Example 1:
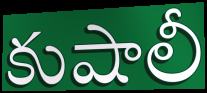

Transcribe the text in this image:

కుషాలీ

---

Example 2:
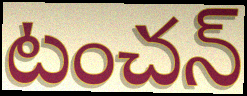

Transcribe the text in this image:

టంచన్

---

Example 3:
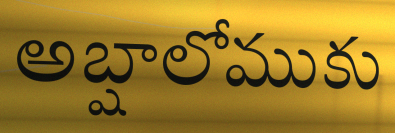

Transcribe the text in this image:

అబ్షాలోముకు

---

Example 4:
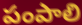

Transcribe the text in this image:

పంపాలి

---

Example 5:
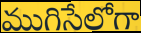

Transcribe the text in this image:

ముగిసేలోగా